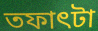
তফাৎটা